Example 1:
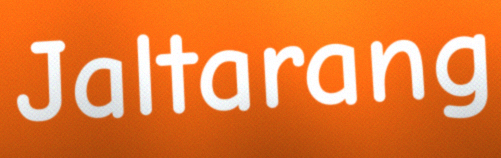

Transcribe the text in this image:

Jaltarang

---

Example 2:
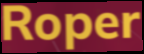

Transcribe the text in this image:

Roper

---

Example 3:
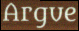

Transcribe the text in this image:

Argue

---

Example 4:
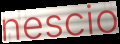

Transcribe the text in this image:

nescio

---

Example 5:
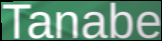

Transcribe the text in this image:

Tanabe